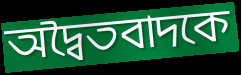
অদ্বৈতবাদকে